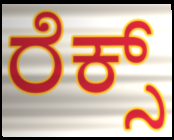
ರೆಕ್ಸ್